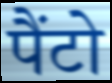
पैंटो